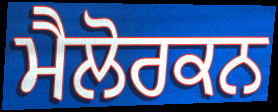
ਮੈਲੋਰਕਨ